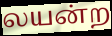
லயன்ற